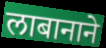
लाबानाने